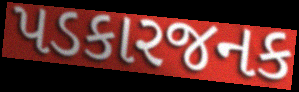
પડકારજનક